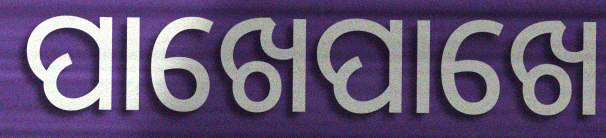
ପାଖେପାଖେ